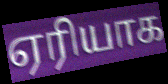
ஏரியாக